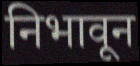
निभावून